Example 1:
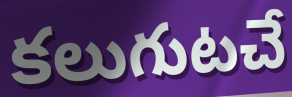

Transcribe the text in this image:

కలుగుటచే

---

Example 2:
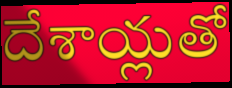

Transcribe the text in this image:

దేశాయ్లతో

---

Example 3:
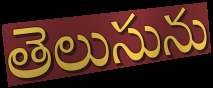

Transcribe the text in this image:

తెలుసును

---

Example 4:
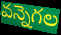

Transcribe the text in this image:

వన్నెగల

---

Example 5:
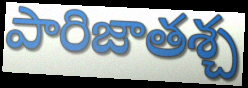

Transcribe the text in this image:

పారిజాతశ్చ